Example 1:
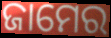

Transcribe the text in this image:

ଜାମେର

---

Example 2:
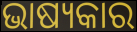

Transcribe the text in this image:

ଭାଷ୍ୟକାର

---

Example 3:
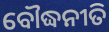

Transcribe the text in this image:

ବୌଦ୍ଧନୀତି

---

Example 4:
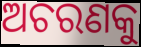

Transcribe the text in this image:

ଅଚରଣକୁ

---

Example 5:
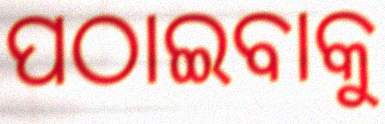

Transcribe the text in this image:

ପଠାଇବାକୁ